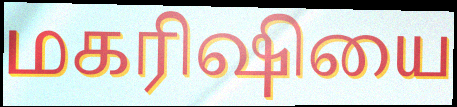
மகரிஷியை